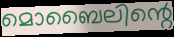
മൊബൈലിന്റെ